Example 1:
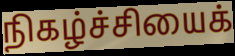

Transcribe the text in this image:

நிகழ்ச்சியைக்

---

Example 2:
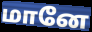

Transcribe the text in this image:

மானே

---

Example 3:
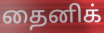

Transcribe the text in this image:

தைனிக்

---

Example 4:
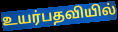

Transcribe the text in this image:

உயர்பதவியில்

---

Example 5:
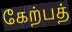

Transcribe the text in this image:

கேற்பத்